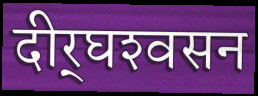
दीर्घश्वसन